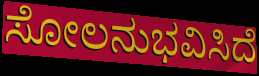
ಸೋಲನುಭವಿಸಿದೆ